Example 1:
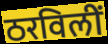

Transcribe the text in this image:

ठरविलीं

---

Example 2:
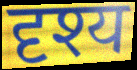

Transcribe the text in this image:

दृश्‍य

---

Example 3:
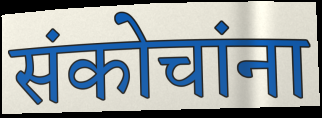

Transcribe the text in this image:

संकोचांना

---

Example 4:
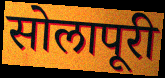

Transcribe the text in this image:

सोलापूरी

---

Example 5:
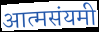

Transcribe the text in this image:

आत्मसंयमी